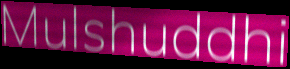
Mulshuddhi